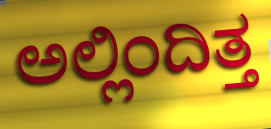
ಅಲ್ಲಿಂದಿತ್ತ